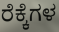
ರೆಕ್ಕೆಗಳ